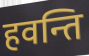
हवन्ति